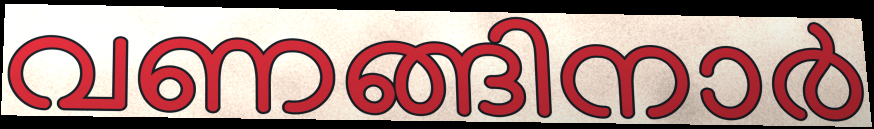
വണങ്ങിനാർ